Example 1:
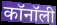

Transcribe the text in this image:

कॉनॉली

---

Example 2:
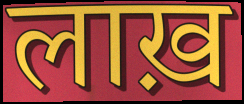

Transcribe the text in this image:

लाख़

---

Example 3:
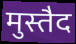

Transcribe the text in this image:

मुस्तैद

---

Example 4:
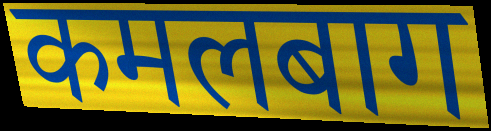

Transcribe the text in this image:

कमलबाग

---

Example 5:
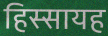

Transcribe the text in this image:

हिस्सायह